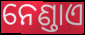
ନେଣ୍ଡାଏ